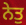
ਨੇਤੁ